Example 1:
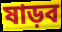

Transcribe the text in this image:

ষাড়ব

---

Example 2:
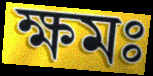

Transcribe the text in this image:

ক্ষমঃ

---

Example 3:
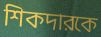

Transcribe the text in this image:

শিকদারকে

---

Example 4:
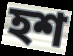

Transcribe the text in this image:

হশ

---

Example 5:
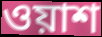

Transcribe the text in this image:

ওয়াশ